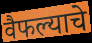
वैफल्याचे